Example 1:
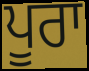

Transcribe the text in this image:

ਪੂਰਾ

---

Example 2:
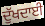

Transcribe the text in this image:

ਦੁੱਖਦਾਈ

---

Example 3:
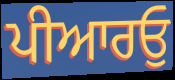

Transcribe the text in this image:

ਪੀਆਰਓੁ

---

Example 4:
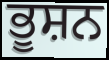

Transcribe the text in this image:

ਭੂਸ਼ਨ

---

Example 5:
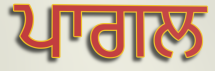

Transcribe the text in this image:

ਪਾਗਲ